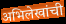
अभिलेखांची